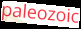
paleozoic